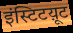
इंस्टिटय़ूट